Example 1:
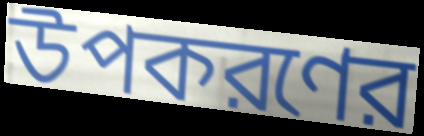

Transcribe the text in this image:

উপকরণের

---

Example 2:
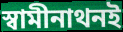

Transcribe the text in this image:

স্বামীনাথনই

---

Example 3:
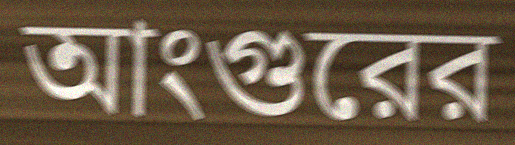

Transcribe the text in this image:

আংগুরের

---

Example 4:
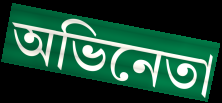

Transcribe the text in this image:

অভিনেতা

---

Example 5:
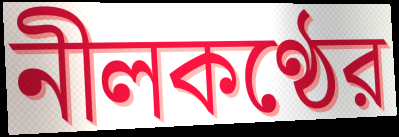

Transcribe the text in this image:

নীলকণ্ঠের